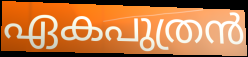
ഏകപുത്രൻ